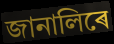
জানালিৰে